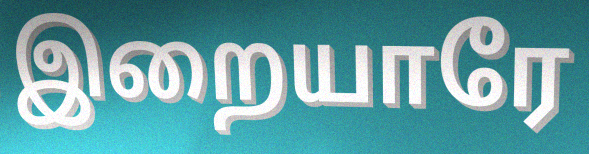
இறையாரே